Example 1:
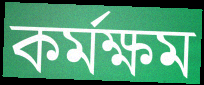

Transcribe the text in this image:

কর্মক্ষম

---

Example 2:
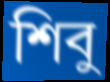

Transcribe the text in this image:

শিবু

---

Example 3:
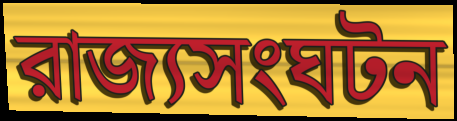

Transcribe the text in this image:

রাজ্যসংঘটন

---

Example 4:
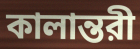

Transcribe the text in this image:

কালান্তরী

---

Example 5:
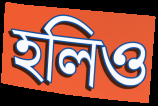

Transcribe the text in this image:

হলিও